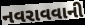
નવરાવવાની